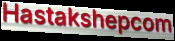
Hastakshepcom